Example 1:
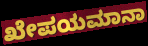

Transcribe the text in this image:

ಖೇಪಯಮಾನಾ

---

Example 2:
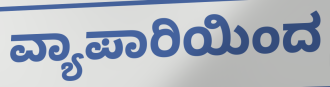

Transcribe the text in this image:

ವ್ಯಾಪಾರಿಯಿಂದ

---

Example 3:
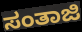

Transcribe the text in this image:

ಸಂತಾಜಿ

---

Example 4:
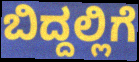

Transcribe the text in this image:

ಬಿದ್ದಲ್ಲಿಗೆ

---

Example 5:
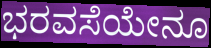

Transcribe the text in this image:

ಭರವಸೆಯೇನೂ